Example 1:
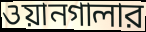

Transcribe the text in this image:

ওয়ানগালার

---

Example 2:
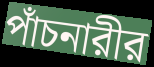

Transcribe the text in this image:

পাঁচনারীর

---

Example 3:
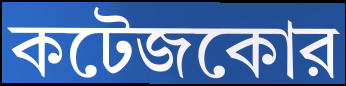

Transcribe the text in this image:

কটেজকোর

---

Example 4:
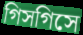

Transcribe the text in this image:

গিসগিসে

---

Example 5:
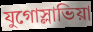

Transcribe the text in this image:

যুগোস্লাভিয়া